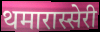
थमारास्सेरी